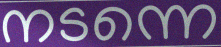
നടന്നെ